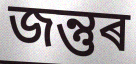
জন্তুৰ